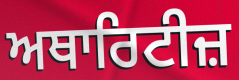
ਅਥਾਰਿਟੀਜ਼